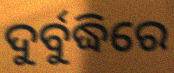
ଦୁର୍ବୁଦ୍ଧିରେ